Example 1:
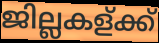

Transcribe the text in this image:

ജില്ലകള്ക്ക്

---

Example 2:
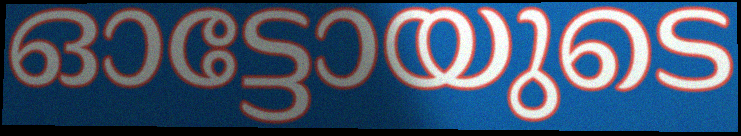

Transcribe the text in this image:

ഓട്ടോയുടെ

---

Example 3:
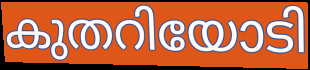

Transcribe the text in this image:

കുതറിയോടി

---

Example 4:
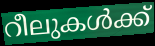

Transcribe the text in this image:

റീലുകൾക്ക്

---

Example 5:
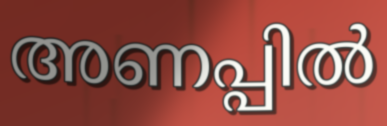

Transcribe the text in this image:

അണപ്പിൽ